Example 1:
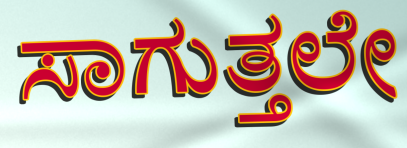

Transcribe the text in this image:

ಸಾಗುತ್ತಲೇ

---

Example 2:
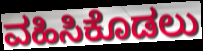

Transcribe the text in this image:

ವಹಿಸಿಕೊಡಲು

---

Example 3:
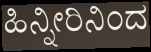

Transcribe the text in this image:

ಹಿನ್ನೀರಿನಿಂದ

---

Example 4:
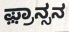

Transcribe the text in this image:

ಫ಼್ರಾನ್ಸನ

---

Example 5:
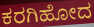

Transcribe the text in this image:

ಕರಗಿಹೋದ